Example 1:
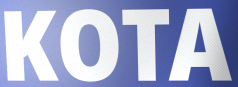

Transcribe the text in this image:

KOTA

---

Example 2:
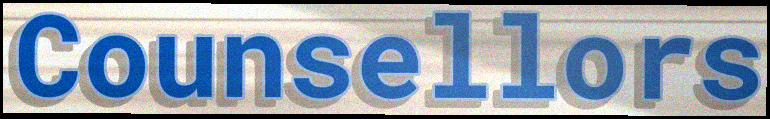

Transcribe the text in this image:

Counsellors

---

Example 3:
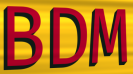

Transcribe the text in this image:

BDM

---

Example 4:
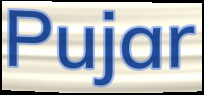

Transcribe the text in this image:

Pujar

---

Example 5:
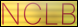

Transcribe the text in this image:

NCLB